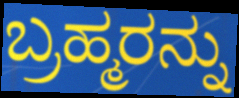
ಬ್ರಹ್ಮರನ್ನು